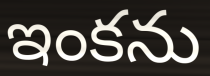
ఇంకను